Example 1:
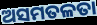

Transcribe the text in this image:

ଅସମତଳତା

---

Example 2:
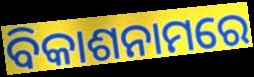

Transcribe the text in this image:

ବିକାଶନାମରେ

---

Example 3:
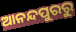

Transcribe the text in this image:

ଆନନ୍ଦପୁରରୁ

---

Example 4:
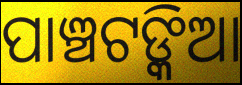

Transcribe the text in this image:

ପାଞ୍ଚଟଙ୍କିଆ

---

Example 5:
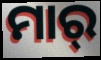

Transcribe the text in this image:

ମାର୍